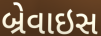
બ્રેવાઇસ